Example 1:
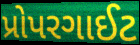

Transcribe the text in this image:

પ્રોપરગાઈટ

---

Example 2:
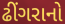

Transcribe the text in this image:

ઢીંગરાનો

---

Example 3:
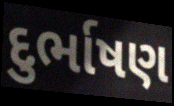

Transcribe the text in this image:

દુર્ભાષણ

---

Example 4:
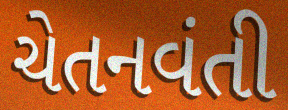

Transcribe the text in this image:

ચેતનવંતી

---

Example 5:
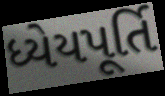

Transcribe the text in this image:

ધ્યેયપૂર્તિ